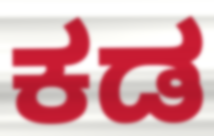
ಕಡ